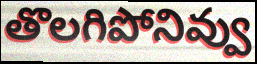
తొలగిపోనివ్వు